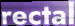
rectal